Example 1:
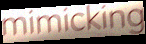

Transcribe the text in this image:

mimicking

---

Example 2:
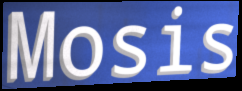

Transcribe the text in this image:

Mosis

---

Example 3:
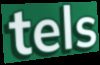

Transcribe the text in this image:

tels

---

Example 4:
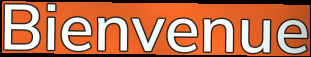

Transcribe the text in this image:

Bienvenue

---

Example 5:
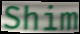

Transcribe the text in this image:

Shim